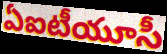
ఏఐటీయూసీ